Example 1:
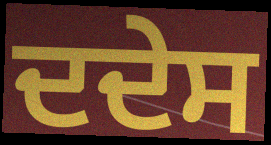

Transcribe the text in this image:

ਦਦੇਸ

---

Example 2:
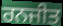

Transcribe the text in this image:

ਰਨਜੀਤ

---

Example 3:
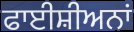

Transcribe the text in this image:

ਫਾਈਸ਼ੀਅਨਾਂ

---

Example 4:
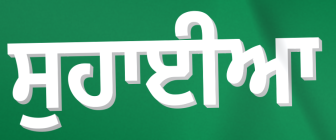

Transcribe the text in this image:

ਸੁਹਾਈਆ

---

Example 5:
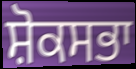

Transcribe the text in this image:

ਸ਼ੋਕਸਭਾ